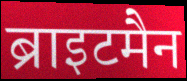
ब्राइटमैन